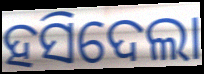
ହସିଦେଲା